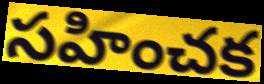
సహించక